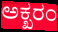
ಅಕ್ಖರಂ